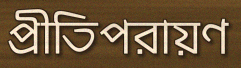
প্রীতিপরায়ণ